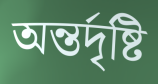
অন্তর্দৃষ্টি